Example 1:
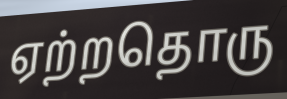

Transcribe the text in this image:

ஏற்றதொரு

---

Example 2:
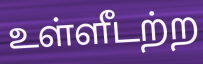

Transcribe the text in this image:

உள்ளீடற்ற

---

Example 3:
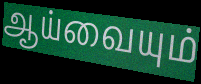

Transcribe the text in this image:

ஆய்வையும்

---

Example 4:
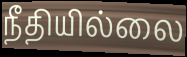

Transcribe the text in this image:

நீதியில்லை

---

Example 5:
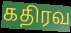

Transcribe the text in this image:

கதிரவ